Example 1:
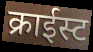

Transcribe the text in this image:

क्राईस्ट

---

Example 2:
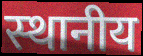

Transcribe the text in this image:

स्‍थानीय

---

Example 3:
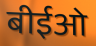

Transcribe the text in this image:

बीईओ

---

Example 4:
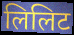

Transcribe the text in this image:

लिलिट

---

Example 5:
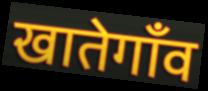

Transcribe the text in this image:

खातेगाँव